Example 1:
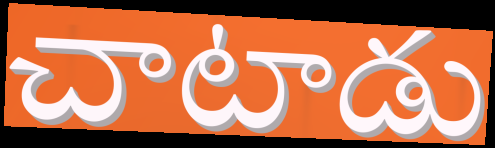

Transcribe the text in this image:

చాటాడు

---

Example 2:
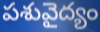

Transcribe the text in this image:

పశువైద్యం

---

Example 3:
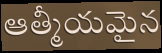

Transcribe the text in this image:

ఆత్మీయమైన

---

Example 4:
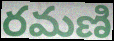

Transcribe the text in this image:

రమణి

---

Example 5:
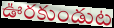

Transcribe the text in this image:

ఊరకుండుట